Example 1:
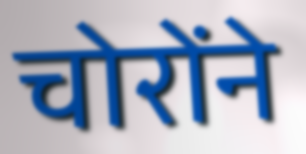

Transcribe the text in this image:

चोरोंने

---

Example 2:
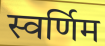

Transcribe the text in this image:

स्‍वर्णिम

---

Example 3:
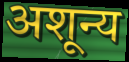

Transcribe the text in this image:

अशून्य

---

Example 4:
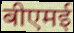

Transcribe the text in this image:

बीएमई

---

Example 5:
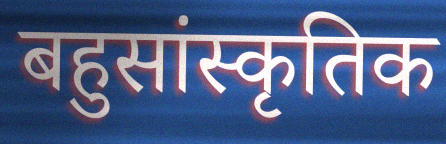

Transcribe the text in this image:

बहुसांस्कृतिक